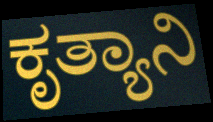
ಕೃತ್ಯಾನಿ